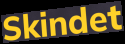
Skindet